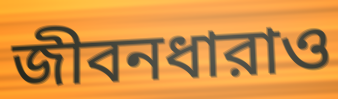
জীবনধারাও